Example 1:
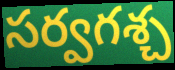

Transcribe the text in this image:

సర్వగశ్చ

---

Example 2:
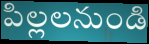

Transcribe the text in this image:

పిల్లలనుండి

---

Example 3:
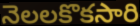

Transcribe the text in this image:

నెలలకొకసారి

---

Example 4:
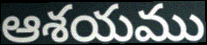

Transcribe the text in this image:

ఆశయము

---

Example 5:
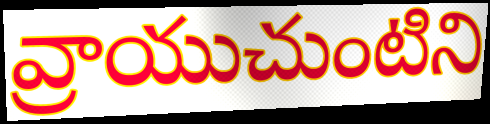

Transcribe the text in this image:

వ్రాయుచుంటిని